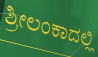
ಶ್ರೀಲಂಕಾದಲ್ಲಿ